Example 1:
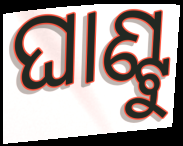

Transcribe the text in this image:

ଘାଣ୍ଟୁ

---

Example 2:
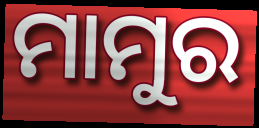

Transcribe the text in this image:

ମାମୁର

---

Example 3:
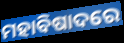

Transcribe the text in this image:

ମହାବିଷାଦରେ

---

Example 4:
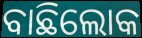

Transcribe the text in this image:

ବାଛିଲୋକ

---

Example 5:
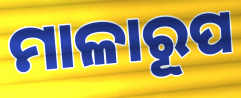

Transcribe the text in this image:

ମାଳାରୂପ